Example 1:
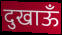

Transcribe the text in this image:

दुखाऊँ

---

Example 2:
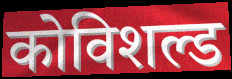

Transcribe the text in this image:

कोविशल्ड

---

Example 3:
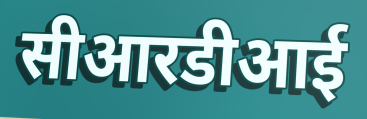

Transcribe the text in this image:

सीआरडीआई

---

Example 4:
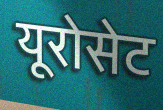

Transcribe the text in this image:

यूरोसेट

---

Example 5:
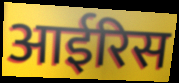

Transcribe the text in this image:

आईरिस